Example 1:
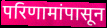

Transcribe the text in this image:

परिणामांपासून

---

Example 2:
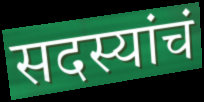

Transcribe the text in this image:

सदस्यांचं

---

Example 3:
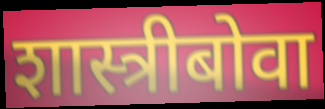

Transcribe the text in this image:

शास्त्रीबोवा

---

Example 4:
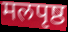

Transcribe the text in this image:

मलपृष्ठ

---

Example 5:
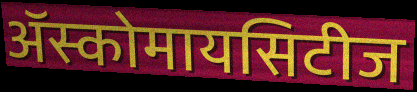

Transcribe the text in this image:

ॲस्कोमायसिटीज